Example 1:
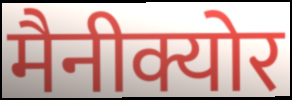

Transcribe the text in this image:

मैनीक्योर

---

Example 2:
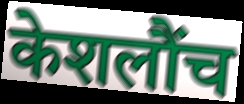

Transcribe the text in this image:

केशलौंच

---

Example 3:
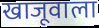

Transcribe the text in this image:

खाजूवाला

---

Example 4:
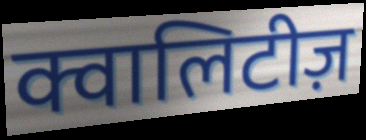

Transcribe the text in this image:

क्वालिटीज़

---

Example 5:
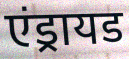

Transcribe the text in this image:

एंड्रायड